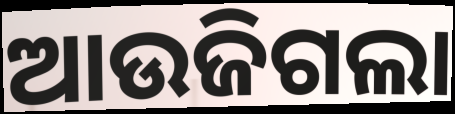
ଆଉଜିଗଲା